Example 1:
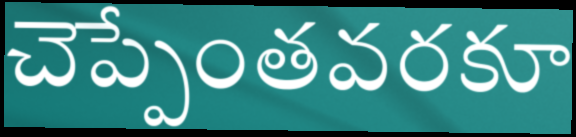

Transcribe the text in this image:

చెప్పేంతవరకూ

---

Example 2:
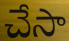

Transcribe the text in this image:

చేసా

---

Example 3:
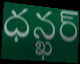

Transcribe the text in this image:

ధన్ఖర్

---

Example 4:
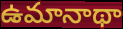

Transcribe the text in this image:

ఉమానాథా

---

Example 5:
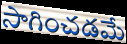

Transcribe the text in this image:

సాగించడమే